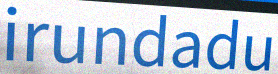
irundadu